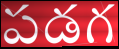
పడగ